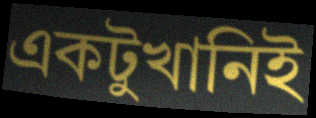
একটুখানিই